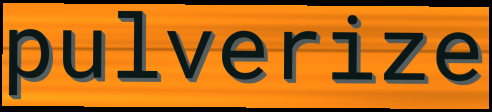
pulverize